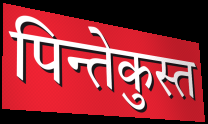
पिन्तेकुस्त